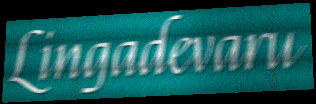
Lingadevaru